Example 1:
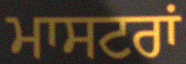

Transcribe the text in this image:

ਮਾਸਟਰਾਂ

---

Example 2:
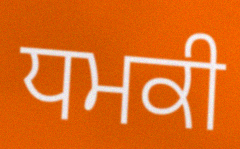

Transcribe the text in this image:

ਧਮਕੀ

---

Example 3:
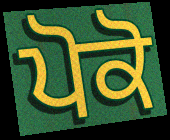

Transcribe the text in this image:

ਪੋਕੋ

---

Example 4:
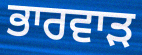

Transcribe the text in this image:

ਭਾਰਵਾੜ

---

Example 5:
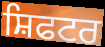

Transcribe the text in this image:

ਸ਼ਿਫਟਰ